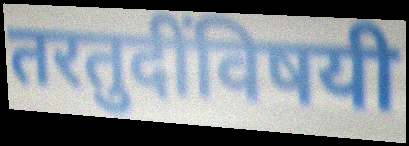
तरतुदींविषयी